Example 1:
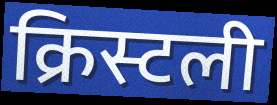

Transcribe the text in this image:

क्रिस्टली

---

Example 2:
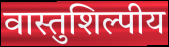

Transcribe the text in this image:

वास्तुशिल्पीय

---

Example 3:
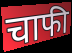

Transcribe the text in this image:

चाफी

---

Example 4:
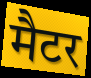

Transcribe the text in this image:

मैटर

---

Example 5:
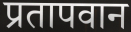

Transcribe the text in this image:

प्रतापवान